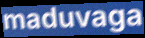
maduvaga